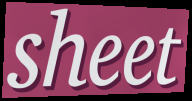
sheet